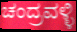
ಚಂದ್ರವಳ್ಳಿ